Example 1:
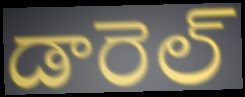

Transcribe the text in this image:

డారెల్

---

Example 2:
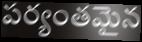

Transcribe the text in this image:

పర్యంతమైన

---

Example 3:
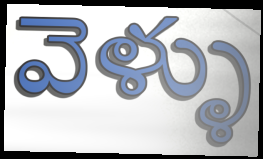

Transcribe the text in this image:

వెళ్ళు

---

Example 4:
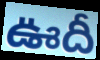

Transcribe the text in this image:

ఊదీ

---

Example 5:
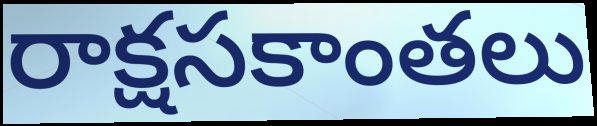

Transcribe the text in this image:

రాక్షసకాంతలు